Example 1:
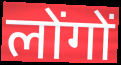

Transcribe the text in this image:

लोंगों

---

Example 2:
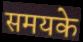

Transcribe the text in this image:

समयके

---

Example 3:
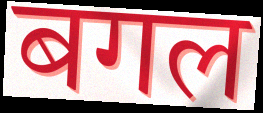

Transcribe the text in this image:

बगल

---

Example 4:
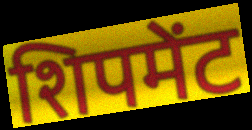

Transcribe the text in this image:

शिपमेंट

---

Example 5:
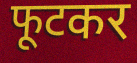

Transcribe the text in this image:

फूटकर